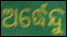
ଅର୍ଦ୍ଧେନ୍ଦୁ